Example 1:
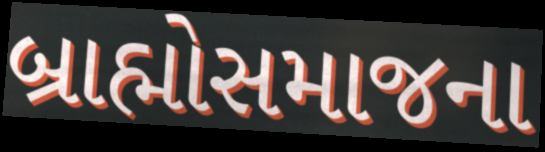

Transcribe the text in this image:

બ્રાહ્મોસમાજના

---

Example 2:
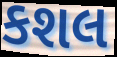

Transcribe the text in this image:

કશલ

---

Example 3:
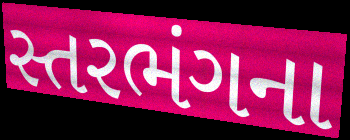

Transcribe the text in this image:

સ્તરભંગના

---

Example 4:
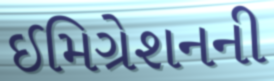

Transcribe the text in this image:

ઈમિગ્રેશનની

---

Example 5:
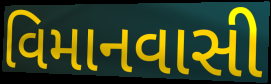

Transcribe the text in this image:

વિમાનવાસી